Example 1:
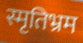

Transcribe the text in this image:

स्मृतिभ्रम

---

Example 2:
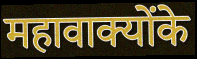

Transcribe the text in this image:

महावाक्योंके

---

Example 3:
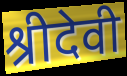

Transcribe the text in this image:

श्रीदेवी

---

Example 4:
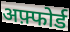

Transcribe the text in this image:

अफ़्फोर्ड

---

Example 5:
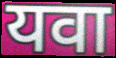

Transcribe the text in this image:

यवा